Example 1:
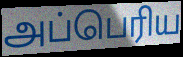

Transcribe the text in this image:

அப்பெரிய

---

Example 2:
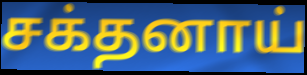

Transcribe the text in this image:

சக்தனாய்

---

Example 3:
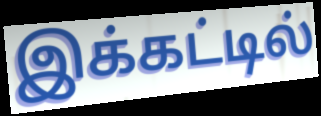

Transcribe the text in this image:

இக்கட்டில்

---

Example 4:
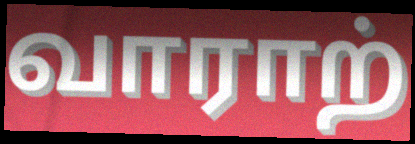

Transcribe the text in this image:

வாராற்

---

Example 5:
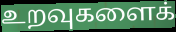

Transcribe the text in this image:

உறவுகளைக்